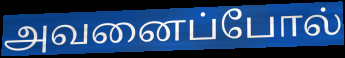
அவனைப்போல்